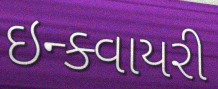
ઇન્ક્વાયરી